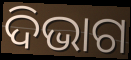
ଦିଭାଗ